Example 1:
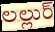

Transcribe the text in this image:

లల్లుర్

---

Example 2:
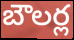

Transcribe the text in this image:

బౌలర్ల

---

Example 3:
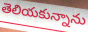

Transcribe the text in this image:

తెలియకున్నాను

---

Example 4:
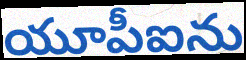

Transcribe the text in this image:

యూపీఐను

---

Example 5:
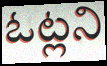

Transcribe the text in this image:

ఓట్లని